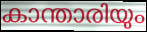
കാന്താരിയും